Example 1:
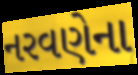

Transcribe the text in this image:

નરવણેના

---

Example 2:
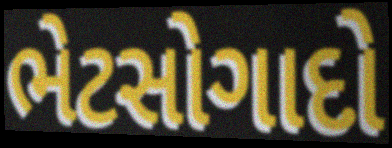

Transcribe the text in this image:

ભેટસોગાદો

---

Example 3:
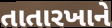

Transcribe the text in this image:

તાતારખાને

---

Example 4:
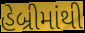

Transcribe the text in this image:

હેબ્રીમાંથી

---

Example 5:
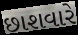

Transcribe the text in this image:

છાશવારે